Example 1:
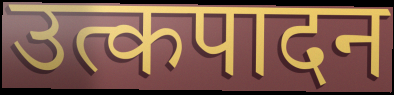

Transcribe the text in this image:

उत्कपादन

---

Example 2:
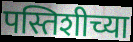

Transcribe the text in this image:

पस्तिशीच्या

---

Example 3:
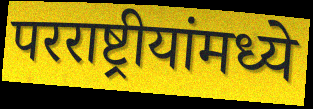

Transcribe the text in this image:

परराष्ट्रीयांमध्ये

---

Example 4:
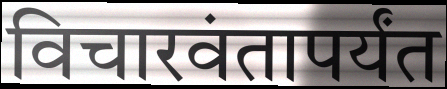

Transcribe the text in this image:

विचारवंतापर्यंत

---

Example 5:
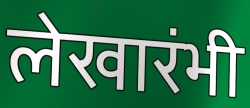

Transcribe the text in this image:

लेखारंभी